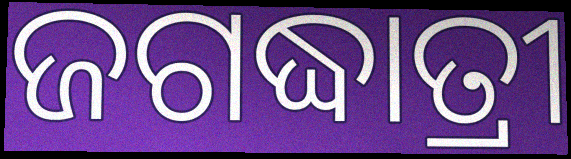
ଜଗଦ୍ଧାତ୍ରୀ